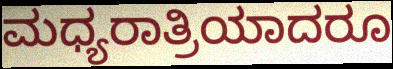
ಮಧ್ಯರಾತ್ರಿಯಾದರೂ